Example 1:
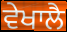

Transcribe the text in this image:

ਵੇਖਾਲੈ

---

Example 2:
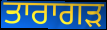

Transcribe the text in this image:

ਤਾਰਾਗੜ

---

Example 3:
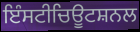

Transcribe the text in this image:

ਇੰਸਟੀਚਿਊਟਸ਼ਨਲ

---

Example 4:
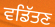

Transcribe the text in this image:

ਵਡਿੱਤਣ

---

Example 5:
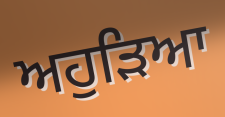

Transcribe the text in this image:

ਅਹੁੜਿਆ